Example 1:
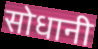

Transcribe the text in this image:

सोधानी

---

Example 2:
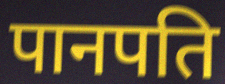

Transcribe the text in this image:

पानपति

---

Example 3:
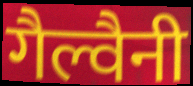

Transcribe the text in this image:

गैल्वैनी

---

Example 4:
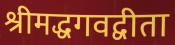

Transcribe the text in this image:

श्रीमद्धगवद्वीता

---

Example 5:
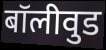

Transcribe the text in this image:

बॉलीवुड